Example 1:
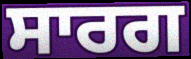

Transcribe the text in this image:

ਸਾਰਗ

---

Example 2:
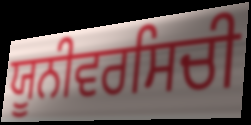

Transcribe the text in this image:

ਯੂਨੀਵਰਸਿਚੀ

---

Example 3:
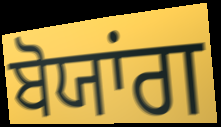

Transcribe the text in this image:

ਬੋਯਾਂਗ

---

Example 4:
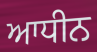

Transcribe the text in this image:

ਆਧੀਨ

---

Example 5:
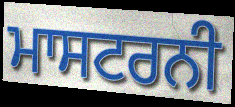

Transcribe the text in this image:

ਮਾਸਟਰਨੀ